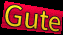
Gute